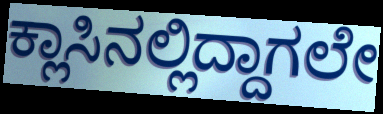
ಕ್ಲಾಸಿನಲ್ಲಿದ್ದಾಗಲೇ